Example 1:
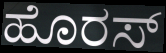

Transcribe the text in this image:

ಹೊರಸ್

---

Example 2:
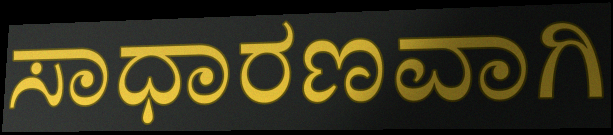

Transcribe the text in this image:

ಸಾಧಾರಣವಾಗಿ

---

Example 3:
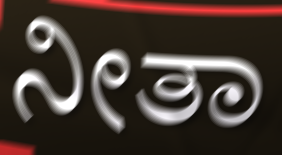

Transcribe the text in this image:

ನೀತಾ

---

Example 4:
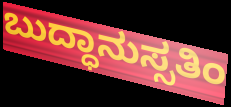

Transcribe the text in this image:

ಬುದ್ಧಾನುಸ್ಸತಿಂ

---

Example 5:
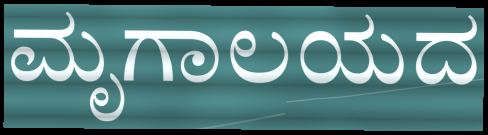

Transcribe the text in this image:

ಮೃಗಾಲಯದ